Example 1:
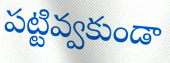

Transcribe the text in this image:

పట్టివ్వకుండా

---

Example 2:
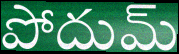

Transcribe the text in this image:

పోదుమ్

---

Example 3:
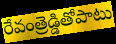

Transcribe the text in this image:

రేవంత్రెడ్డితోపాటు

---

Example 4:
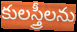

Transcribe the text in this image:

కులస్త్రీలను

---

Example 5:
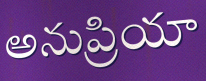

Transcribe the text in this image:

అనుప్రియా